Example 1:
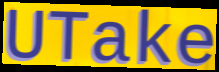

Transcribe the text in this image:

UTake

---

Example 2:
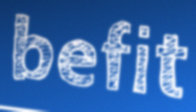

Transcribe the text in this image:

befit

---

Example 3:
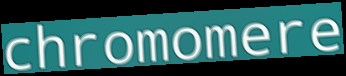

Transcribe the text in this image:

chromomere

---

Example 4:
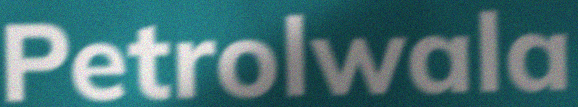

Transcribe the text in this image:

Petrolwala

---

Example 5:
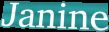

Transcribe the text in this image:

Janine